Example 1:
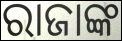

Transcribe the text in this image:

ରାଜାଙ୍କ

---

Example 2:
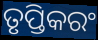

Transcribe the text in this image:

ତୃପ୍ତିକରଂ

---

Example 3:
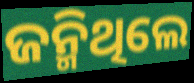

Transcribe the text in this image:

ଜନ୍ମିଥିଲେ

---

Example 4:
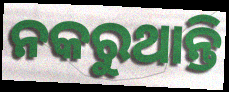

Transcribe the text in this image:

ନକରୁଥାନ୍ତି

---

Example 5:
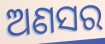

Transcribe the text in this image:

ଅଣସର